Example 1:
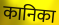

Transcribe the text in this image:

कानिका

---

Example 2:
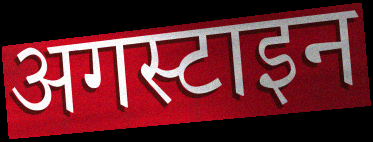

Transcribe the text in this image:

अगस्टाइन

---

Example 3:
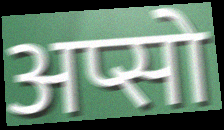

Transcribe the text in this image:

अप्सो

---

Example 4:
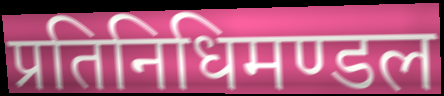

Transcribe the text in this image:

प्रतिनिधिमण्डल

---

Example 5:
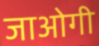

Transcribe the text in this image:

जाओगी